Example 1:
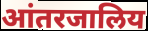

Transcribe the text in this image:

आंतरजालिय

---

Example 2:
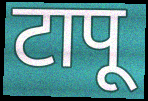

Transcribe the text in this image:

टापू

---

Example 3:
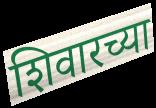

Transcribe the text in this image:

शिवारच्या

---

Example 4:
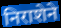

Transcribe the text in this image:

निराशेने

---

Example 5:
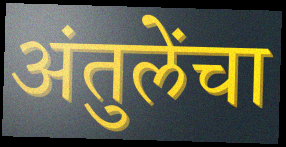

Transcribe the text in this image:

अंतुलेंचा